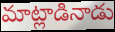
మాట్లాడినాడు